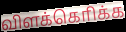
விளக்கெரிக்க